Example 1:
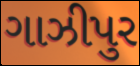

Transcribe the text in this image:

ગાઝીપુર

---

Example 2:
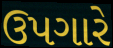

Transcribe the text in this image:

ઉપગારે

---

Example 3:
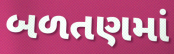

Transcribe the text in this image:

બળતણમાં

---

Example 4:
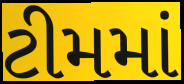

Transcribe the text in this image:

ટીમમાં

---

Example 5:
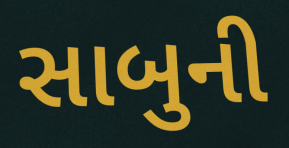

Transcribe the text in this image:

સાબુની